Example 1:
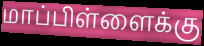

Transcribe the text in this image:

மாப்பிள்ளைக்கு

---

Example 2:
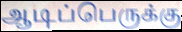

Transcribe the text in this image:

ஆடிப்பெருக்கு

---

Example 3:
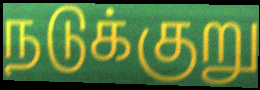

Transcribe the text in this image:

நடுக்குறு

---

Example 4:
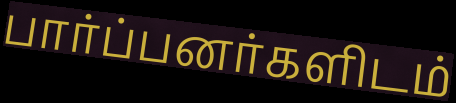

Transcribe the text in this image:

பார்ப்பனர்களிடம்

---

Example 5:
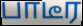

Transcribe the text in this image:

பாடீர